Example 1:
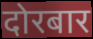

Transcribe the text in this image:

दोरबार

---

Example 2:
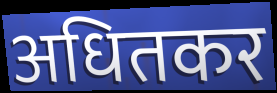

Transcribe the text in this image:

अधितकर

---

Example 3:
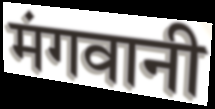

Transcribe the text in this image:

मंगवानी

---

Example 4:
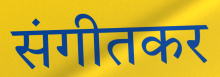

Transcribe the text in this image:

संगीतकर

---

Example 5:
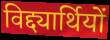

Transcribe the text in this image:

विद्द्यार्थियों